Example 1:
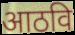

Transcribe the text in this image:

आठवि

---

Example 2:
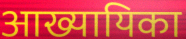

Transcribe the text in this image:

आख्यायिका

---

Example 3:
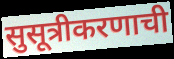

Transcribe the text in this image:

सुसूत्रीकरणाची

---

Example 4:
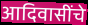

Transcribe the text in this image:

आदिवासींचे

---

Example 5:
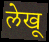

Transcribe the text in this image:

लेखू